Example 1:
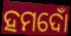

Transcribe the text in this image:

ହମଦୋଁ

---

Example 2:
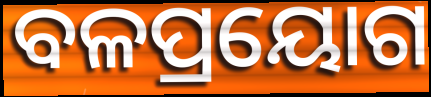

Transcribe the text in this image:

ବଳପ୍ରୟୋଗ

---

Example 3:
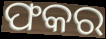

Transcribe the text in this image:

ଫକର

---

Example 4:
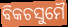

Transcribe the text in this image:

ବିକଚସୁମୈ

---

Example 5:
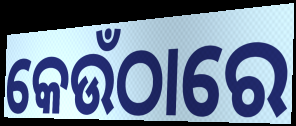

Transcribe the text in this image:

କେଉଁଠାରେ